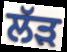
ਲੱੜ